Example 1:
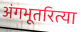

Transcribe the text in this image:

अंगभूतरित्या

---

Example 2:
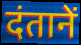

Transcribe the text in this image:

दंतानें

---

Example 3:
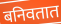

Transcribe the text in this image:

बनिवतात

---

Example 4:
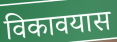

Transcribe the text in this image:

विकावयास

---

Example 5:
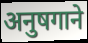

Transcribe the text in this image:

अनुषगाने